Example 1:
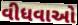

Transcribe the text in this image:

વીધવાઓ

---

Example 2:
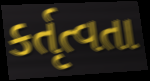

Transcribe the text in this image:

કર્તૃત્વતા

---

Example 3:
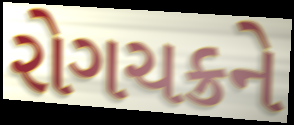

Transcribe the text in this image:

રોગચક્રને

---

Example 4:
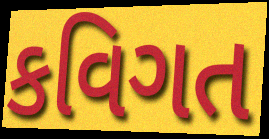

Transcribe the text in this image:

કવિગત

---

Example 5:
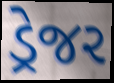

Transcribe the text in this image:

ડ્રેજર